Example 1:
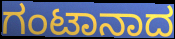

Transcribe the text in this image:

ಗಂಟಾನಾದ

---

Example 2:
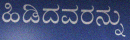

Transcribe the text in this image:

ಹಿಡಿದವರನ್ನು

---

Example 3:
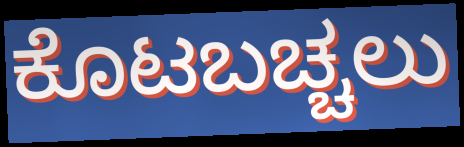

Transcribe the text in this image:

ಕೊಟಬಚ್ಚಲು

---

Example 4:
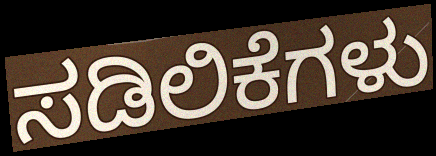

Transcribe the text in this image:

ಸಡಿಲಿಕೆಗಳು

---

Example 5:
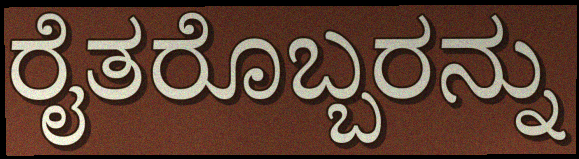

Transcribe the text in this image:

ರೈತರೊಬ್ಬರನ್ನು